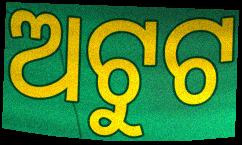
ଅଟୁଟ